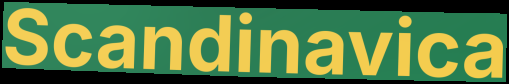
Scandinavica